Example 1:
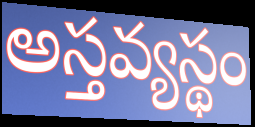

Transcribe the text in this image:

అస్తవ్యస్థం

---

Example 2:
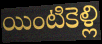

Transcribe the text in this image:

యింటికెళ్లి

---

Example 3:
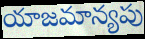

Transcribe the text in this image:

యాజమాన్యపు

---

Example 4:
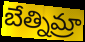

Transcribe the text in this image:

బేత్నిమ్రా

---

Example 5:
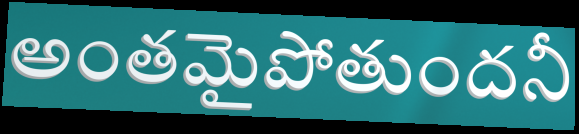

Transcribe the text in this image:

అంతమైపోతుందనీ